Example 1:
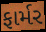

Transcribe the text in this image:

ફાર્મર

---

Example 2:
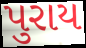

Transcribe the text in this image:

પુરાય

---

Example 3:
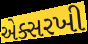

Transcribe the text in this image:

એક્સરખી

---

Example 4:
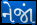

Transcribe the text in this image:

નેજાં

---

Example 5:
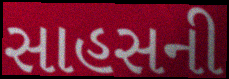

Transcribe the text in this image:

સાહસની